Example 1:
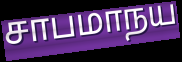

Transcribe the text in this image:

சாபமாநய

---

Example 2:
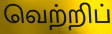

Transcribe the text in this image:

வெற்றிப்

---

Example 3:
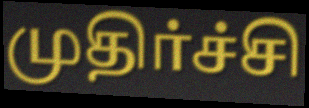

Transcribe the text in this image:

முதிர்ச்சி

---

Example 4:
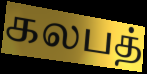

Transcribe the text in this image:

கலபத்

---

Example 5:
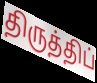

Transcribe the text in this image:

திருத்திப்